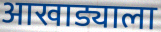
आखाड्याला